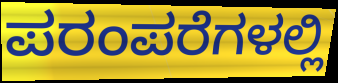
ಪರಂಪರೆಗಳಲ್ಲಿ